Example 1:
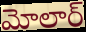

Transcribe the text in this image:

మోలార్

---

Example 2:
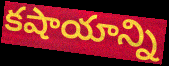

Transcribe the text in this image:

కషాయాన్ని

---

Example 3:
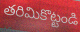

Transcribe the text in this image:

తరిమికొట్టండి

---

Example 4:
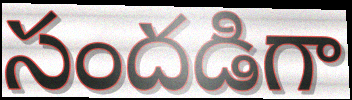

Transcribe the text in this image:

సందడిగా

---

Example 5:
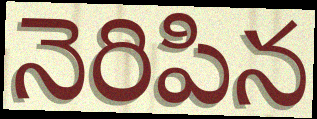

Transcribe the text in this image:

నెరిపిన